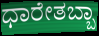
ಧಾರೇತಬ್ಬಾ